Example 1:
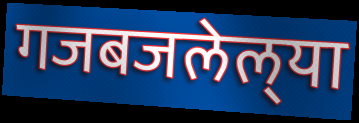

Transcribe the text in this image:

गजबजलेल्या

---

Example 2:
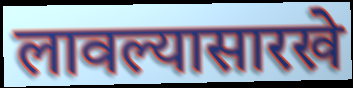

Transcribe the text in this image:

लावल्यासारखे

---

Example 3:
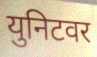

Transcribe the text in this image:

युनिटवर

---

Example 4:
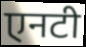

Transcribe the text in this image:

एनटी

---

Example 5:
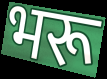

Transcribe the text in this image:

भरू